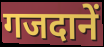
गजदानें